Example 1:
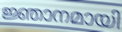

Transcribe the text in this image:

ജ്ഞാനമായി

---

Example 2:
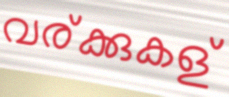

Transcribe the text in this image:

വര്ക്കുകള്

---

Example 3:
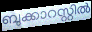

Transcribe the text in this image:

ബുക്കാറസ്റ്റിൽ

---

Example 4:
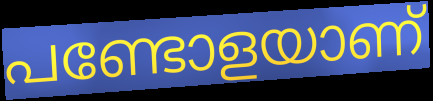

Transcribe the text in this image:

പണ്ടോളയാണ്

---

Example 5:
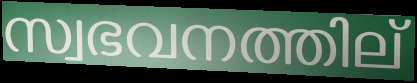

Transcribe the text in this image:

സ്വഭവനത്തില്